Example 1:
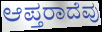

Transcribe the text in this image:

ಆಪ್ತರಾದೆವು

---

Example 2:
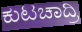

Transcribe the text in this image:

ಕುಟಚಾದ್ರಿ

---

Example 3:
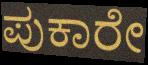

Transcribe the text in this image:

ಪುಕಾರೇ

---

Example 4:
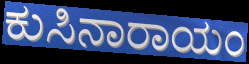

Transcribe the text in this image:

ಕುಸಿನಾರಾಯಂ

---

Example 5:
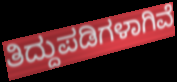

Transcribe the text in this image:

ತಿದ್ದುಪಡಿಗಳಾಗಿವೆ